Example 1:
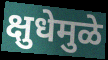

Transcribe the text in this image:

क्षुधेमुळे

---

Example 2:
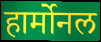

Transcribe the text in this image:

हार्मोनल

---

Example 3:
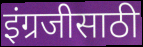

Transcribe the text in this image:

इंग्रजीसाठी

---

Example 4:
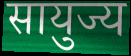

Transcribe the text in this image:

सायुज्य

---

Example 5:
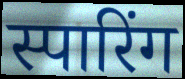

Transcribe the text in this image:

स्पारिंग